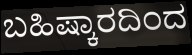
ಬಹಿಷ್ಕಾರದಿಂದ